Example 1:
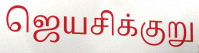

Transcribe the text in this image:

ஜெயசிக்குறு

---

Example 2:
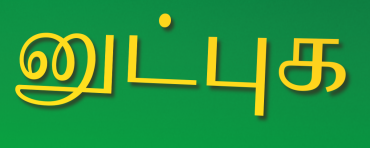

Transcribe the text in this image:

னுட்புக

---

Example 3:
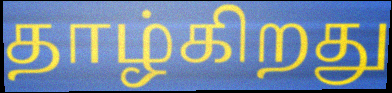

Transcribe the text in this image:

தாழ்கிறது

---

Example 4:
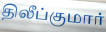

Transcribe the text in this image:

திலீப்குமார்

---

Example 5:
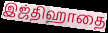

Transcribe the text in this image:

இஜ்திஹாதை